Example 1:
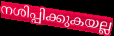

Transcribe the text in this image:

നശിപ്പിക്കുകയല്ല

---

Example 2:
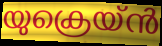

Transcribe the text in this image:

യുക്രെയ്ൻ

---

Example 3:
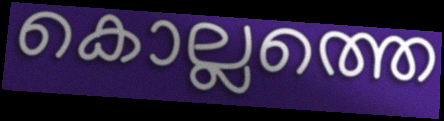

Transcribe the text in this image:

കൊല്ലത്തെ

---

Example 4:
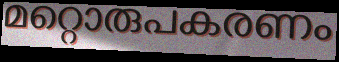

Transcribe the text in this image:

മറ്റൊരുപകരണം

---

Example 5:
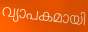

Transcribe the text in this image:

വ്യാപകമായി